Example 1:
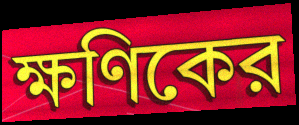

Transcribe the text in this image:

ক্ষণিকের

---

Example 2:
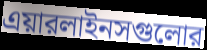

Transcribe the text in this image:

এয়ারলাইনসগুলোর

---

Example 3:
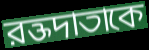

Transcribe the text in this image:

রক্তদাতাকে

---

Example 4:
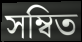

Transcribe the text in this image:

সম্বিত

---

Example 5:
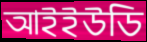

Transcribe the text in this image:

আইইউডি